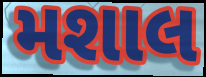
મશાલ